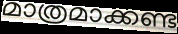
മാത്രമാക്കണ്ട